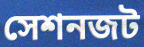
সেশনজট